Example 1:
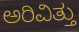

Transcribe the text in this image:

ಅರಿವಿತ್ತು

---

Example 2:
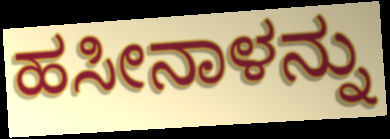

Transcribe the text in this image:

ಹಸೀನಾಳನ್ನು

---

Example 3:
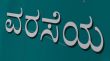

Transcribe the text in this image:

ವರಸೆಯ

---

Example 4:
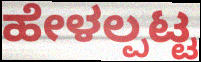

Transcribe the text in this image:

ಹೇಳಲ್ಪಟ್ಟ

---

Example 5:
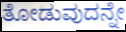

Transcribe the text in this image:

ತೋಡುವುದನ್ನೇ